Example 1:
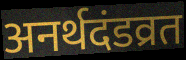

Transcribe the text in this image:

अनर्थदंडव्रत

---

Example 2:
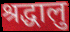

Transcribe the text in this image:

श्रद्धालु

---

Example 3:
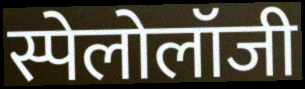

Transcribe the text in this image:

स्पेलोलॉजी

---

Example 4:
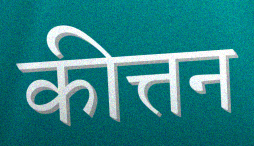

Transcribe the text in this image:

कीत्तन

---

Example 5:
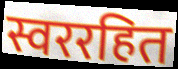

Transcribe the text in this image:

स्वररहित